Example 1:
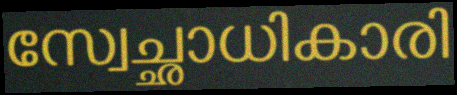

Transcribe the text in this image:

സ്വേച്ഛാധികാരി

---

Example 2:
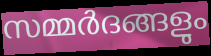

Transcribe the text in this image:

സമ്മർദങ്ങളും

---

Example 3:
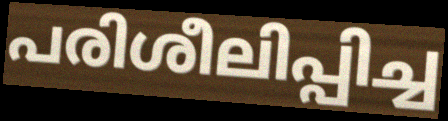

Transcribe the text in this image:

പരിശീലിപ്പിച്ച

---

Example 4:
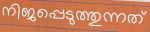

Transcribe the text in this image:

നിജപ്പെടുത്തുന്നത്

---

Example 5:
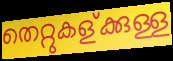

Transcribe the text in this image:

തെറ്റുകള്ക്കുള്ള